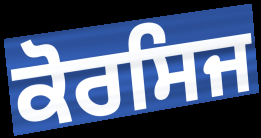
ਕੋਰਸਿਜ